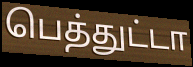
பெத்துட்டா